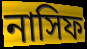
নাসিফ